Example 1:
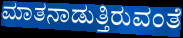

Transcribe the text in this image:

ಮಾತನಾಡುತ್ತಿರುವಂತೆ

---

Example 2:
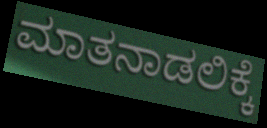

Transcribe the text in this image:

ಮಾತನಾಡಲಿಕ್ಕೆ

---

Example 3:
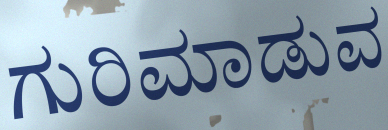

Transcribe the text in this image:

ಗುರಿಮಾಡುವ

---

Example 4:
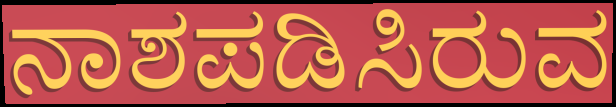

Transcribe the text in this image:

ನಾಶಪಡಿಸಿರುವ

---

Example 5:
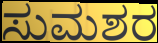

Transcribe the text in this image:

ಸುಮಶರ